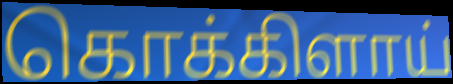
கொக்கிளாய்